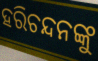
ହରିଚନ୍ଦନଙ୍କୁ